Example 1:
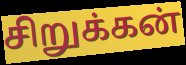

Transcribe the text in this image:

சிறுக்கன்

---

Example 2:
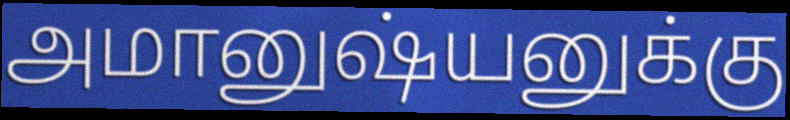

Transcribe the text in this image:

அமானுஷ்யனுக்கு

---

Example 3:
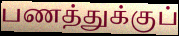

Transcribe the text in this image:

பணத்துக்குப்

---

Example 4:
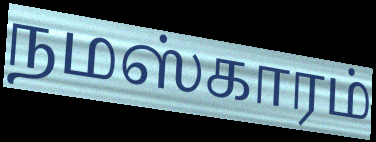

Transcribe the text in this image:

நமஸ்காரம்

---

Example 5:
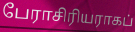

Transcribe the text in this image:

பேராசிரியராகப்